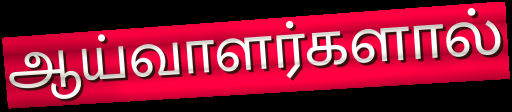
ஆய்வாளர்களால்